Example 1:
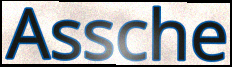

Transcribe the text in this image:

Assche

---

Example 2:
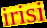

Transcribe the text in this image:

irisi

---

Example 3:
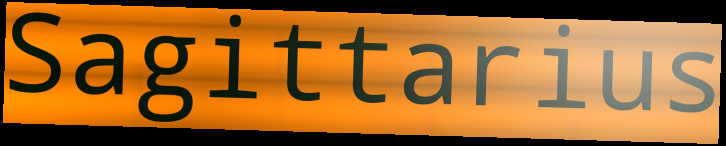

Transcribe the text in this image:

Sagittarius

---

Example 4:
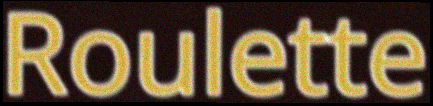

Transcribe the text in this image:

Roulette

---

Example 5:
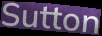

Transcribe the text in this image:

Sutton